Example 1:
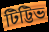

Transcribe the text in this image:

টিট্টিভ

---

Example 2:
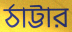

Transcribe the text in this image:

ঠাট্টার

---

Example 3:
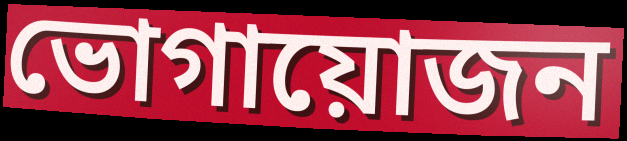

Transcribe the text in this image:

ভোগায়োজন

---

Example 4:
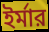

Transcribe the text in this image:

ইর্মার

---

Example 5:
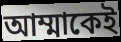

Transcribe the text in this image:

আম্মাকেই